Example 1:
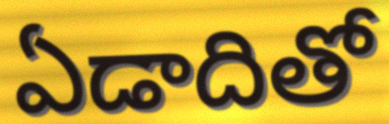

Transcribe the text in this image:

ఏడాదితో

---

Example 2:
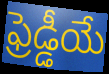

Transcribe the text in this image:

ఫ్రెడ్డీయే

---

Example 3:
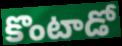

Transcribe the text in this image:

కొంటాడో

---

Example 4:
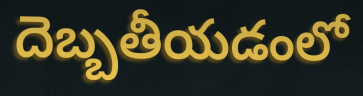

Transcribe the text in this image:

దెబ్బతీయడంలో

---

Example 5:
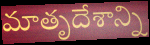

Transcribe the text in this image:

మాతృదేశాన్ని